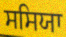
ਸਸਿਯਾ